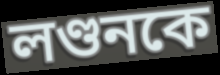
লণ্ডনকে